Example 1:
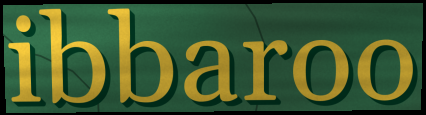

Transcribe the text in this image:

ibbaroo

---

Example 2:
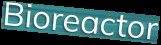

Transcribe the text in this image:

Bioreactor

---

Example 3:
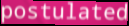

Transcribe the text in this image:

postulated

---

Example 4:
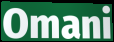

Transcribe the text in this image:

Omani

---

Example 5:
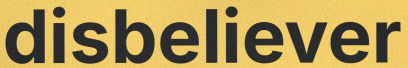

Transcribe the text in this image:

disbeliever